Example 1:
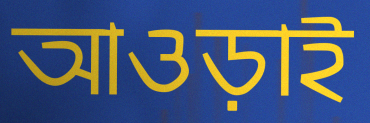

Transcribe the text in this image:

আওড়াই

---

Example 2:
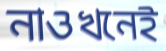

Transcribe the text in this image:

নাওখনেই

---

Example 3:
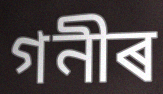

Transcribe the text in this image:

গনীৰ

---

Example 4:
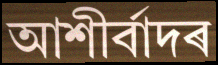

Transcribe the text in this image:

আশীৰ্বাদৰ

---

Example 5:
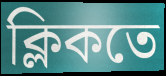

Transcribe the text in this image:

ক্লিকতে